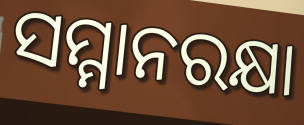
ସମ୍ମାନରକ୍ଷା